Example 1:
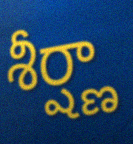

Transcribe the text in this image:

శీర్ష్ణా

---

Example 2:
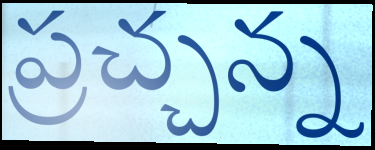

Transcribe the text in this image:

ప్రచ్చన్న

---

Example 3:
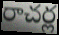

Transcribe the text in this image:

రాచర్ల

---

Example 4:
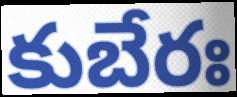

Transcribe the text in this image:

కుబేరః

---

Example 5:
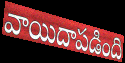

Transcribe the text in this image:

వాయిదాపడింది